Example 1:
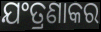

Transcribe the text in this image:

ଯଂତ୍ରଣାକର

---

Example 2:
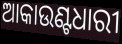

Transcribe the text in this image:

ଆକାଉଣ୍ଟଧାରୀ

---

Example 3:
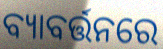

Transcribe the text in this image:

ବ୍ୟାବର୍ତ୍ତନରେ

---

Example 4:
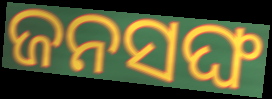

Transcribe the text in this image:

ଜନସଙ୍ଘ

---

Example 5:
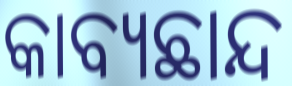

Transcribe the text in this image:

କାବ୍ୟଛାନ୍ଦ